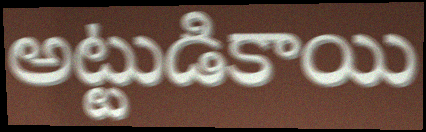
అట్టుడికాయి